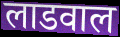
लाडवाल